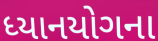
ધ્યાનયોગના